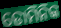
ଡୋମିନିକ